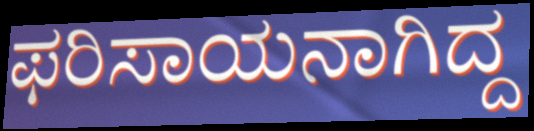
ಫರಿಸಾಯನಾಗಿದ್ದ